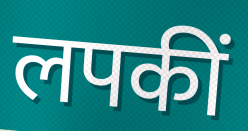
लपकीं